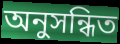
অনুসন্ধিত